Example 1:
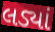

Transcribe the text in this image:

લડ્યાં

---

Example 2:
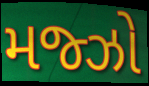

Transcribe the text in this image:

મજ્ઝો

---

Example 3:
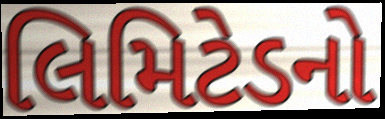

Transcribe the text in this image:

લિમિટેડનો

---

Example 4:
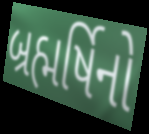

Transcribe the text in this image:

બ્રહ્મર્ષિનો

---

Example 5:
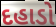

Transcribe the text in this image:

દહાડો